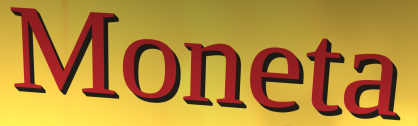
Moneta